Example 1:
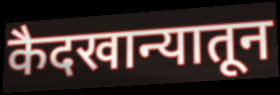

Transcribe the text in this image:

कैदखान्यातून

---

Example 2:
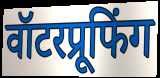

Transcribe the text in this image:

वॉटरप्रूफिंग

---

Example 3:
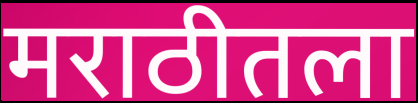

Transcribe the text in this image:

मराठीतला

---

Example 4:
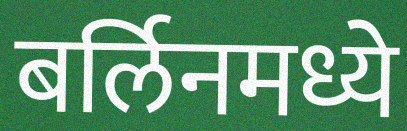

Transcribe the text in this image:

बर्लिनमध्ये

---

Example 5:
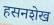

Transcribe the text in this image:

हसनशेख